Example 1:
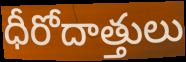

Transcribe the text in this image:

ధీరోదాత్తులు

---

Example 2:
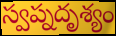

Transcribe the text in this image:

స్వప్నదృశ్యం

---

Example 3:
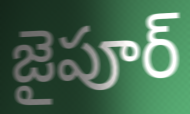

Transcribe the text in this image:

జైపూర్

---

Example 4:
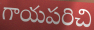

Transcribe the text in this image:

గాయపరిచి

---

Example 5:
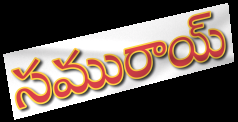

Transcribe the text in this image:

సమురాయ్